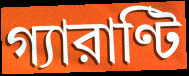
গ্যারাণ্টি